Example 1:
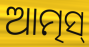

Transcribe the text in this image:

ଆତ୍ମସ୍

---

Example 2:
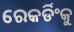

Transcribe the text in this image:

ରେକର୍ଡିଂକୁ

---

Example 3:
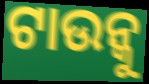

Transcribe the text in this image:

ଟାଉନ୍କୁ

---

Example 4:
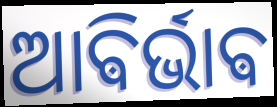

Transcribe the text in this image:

ଆଵିର୍ଭାଵ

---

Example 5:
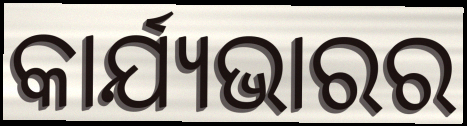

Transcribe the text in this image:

କାର୍ଯ୍ୟଭାରର